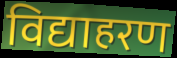
विद्याहरण